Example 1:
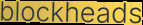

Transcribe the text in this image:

blockheads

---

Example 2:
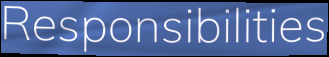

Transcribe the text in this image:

Responsibilities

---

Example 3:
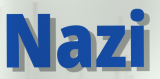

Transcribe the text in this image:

Nazi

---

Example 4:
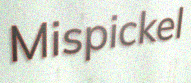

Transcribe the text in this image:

Mispickel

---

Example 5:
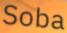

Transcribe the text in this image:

Soba